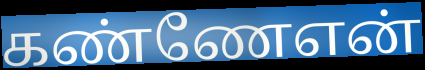
கண்ணேஎன்